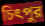
চিৎপুর